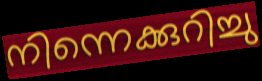
നിന്നെക്കുറിച്ചു